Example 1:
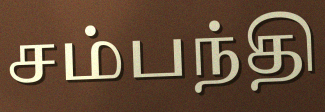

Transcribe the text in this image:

சம்பந்தி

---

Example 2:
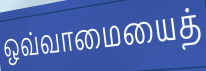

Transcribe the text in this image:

ஒவ்வாமையைத்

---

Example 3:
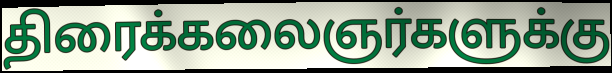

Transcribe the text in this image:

திரைக்கலைஞர்களுக்கு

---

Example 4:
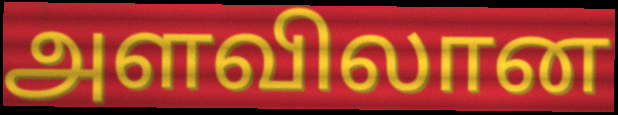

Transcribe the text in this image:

அளவிலான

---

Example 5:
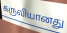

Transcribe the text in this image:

கருவியானது